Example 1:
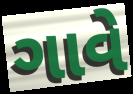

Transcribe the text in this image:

ગાવે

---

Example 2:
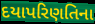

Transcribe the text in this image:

દયાપરિણતિના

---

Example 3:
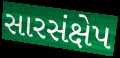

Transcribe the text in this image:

સારસંક્ષેપ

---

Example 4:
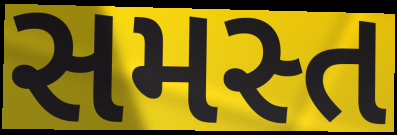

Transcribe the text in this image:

સમસ્ત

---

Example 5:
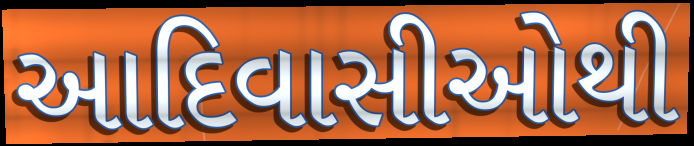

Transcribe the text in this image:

આદિવાસીઓથી